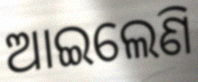
ଆଇଲେଣି